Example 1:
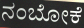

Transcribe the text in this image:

ನಂಬೋಕೆ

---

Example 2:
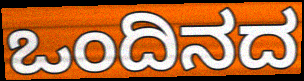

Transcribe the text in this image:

ಒಂದಿನದ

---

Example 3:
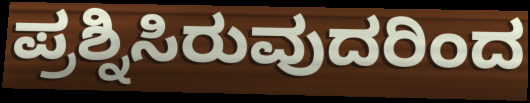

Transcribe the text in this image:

ಪ್ರಶ್ನಿಸಿರುವುದರಿಂದ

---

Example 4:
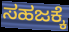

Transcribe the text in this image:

ಸಹಜಕ್ಕೆ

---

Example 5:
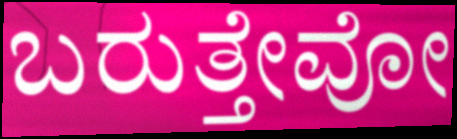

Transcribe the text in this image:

ಬರುತ್ತೇವೋ